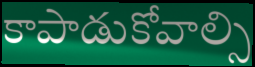
కాపాడుకోవాల్సి